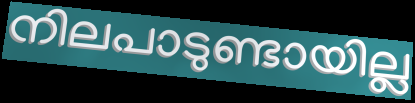
നിലപാടുണ്ടായില്ല